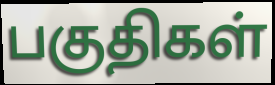
பகுதிகள்